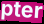
pter